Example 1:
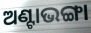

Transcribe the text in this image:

ଅଣ୍ଟାଭଙ୍ଗା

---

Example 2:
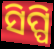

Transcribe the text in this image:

ସିପ୍ପି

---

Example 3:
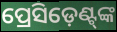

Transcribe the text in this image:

ପ୍ରେସିଡ଼େଣ୍ଟ୍‍ଙ୍କ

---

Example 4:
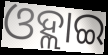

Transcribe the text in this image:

ଓହ୍ଲାଇ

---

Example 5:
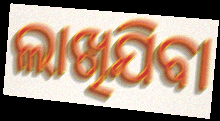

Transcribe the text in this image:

ଲାଖିଯିବା